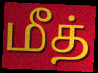
மீத்